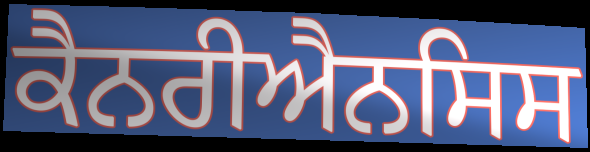
ਕੈਨਰੀਐਨਸਿਸ